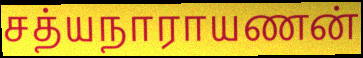
சத்யநாராயணன்